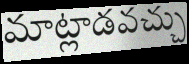
మాట్లాడవచ్చు